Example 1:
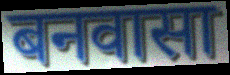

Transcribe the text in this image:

बनवासा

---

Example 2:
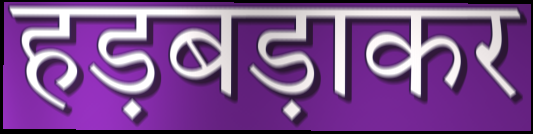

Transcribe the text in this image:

हड़बड़ाकर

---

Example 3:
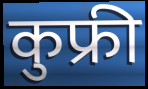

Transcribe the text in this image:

कुफ्री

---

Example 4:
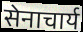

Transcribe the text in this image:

सेनाचार्य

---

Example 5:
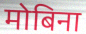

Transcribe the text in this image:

मोबिना